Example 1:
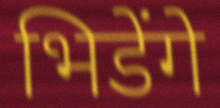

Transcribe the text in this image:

भिडेंगे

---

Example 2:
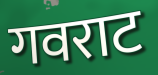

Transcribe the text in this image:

गवराट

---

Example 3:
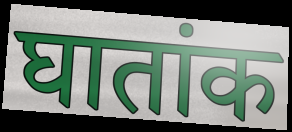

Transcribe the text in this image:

घातांक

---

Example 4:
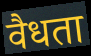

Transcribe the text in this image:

वैधता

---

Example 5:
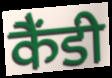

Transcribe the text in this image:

कैंडी